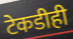
टेकडीही